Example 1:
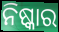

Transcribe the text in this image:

ନିଷ୍କାର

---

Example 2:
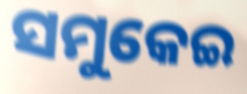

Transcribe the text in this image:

ସମୁକେଇ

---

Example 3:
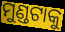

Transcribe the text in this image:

ମୁଣ୍ଡଟାକୁ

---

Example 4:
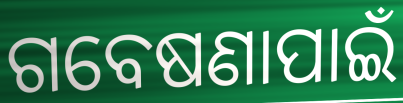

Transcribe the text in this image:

ଗବେଷଣାପାଇଁ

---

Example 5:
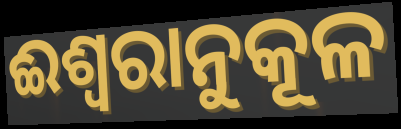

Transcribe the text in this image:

ଈଶ୍ଵରାନୁକୂଳ